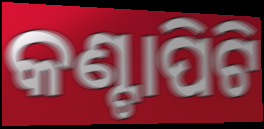
କଣ୍ଟାପିଟି